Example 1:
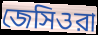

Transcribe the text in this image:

জেসিওরা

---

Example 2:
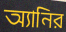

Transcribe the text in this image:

অ্যানির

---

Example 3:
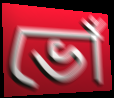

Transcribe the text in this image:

ভোঁ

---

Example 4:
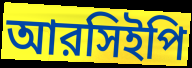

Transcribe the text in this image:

আরসিইপি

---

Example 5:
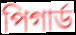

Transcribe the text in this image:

পিগার্ড